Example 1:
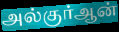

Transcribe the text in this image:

அல்குர்ஆன்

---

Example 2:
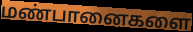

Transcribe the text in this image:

மண்பானைகளை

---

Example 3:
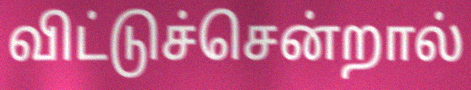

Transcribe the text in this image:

விட்டுச்சென்றால்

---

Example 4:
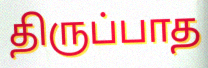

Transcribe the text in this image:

திருப்பாத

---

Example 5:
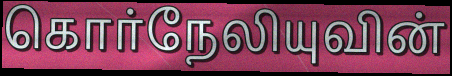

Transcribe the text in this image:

கொர்நேலியுவின்